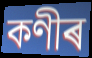
কণীৰ